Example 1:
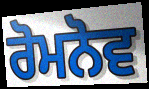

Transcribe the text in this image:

ਰੋਮਨੋਵ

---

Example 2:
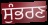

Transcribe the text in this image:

ਸੁੰਭਰਣ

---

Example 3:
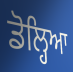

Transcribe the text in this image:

ਡੋਲ੍ਹਿਆ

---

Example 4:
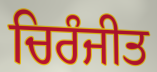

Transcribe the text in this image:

ਚਿਰੰਜੀਤ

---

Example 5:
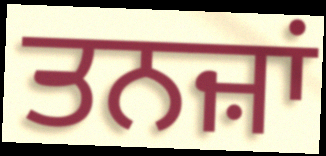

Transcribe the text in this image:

ਤਨਜ਼ਾਂ